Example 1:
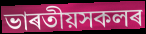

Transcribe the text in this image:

ভাৰতীয়সকলৰ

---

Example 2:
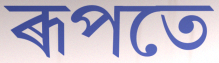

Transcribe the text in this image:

ৰূপতে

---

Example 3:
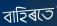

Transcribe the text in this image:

বাহিৰতে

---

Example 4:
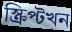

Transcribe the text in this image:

স্ক্ৰিপ্টখন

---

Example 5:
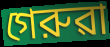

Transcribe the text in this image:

গেৰুৱা